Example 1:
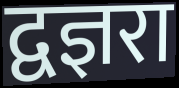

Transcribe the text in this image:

द्वज्ञरा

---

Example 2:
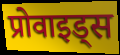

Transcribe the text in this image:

प्रोवाइड्स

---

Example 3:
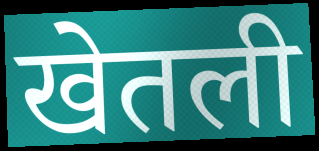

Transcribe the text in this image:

खेतली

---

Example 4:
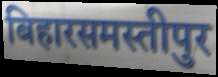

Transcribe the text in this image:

बिहारसमस्तीपुर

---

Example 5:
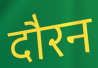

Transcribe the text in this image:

दौरन